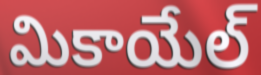
మికాయేల్